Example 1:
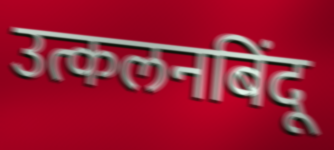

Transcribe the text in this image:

उत्कलनबिंदू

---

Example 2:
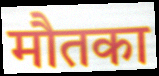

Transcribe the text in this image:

मौतका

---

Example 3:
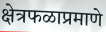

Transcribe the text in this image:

क्षेत्रफळाप्रमाणे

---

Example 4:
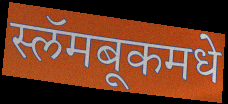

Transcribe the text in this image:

स्लॅमबूकमधे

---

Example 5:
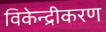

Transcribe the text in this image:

विकेन्द्रीकरण